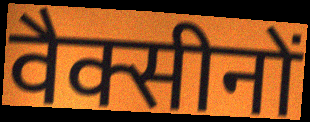
वैक्सीनों